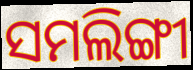
ସମଲିଙ୍ଗୀ